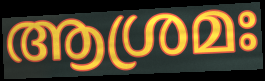
ആശ്രമഃ